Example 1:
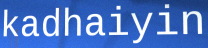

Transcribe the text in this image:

kadhaiyin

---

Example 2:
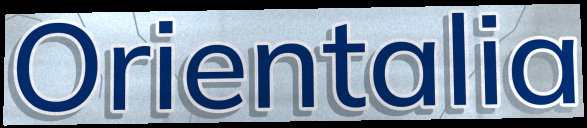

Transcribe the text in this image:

Orientalia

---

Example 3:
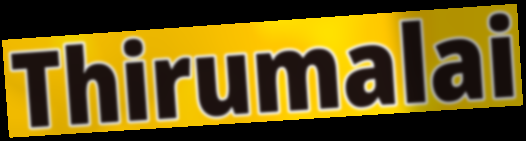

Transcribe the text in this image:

Thirumalai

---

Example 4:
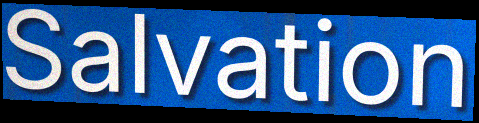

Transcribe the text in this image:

Salvation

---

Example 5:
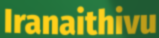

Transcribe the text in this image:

Iranaithivu